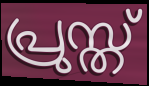
പ്രുസ്ത്